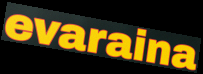
evaraina